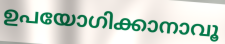
ഉപയോഗിക്കാനാവൂ